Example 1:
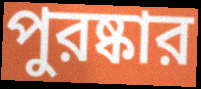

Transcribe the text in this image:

পুরষ্কার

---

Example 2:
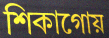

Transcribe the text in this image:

শিকাগোয়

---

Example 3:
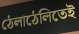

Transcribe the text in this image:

ঠেলাঠেলিতেই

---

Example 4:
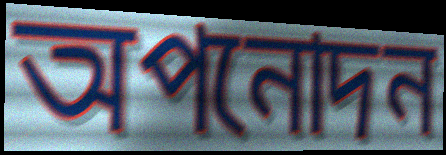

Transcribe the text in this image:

অপনোদন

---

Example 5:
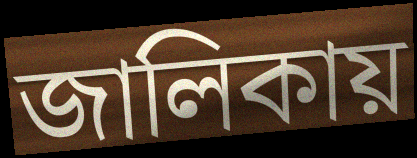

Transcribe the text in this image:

জালিকায়